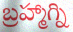
బ్రహ్మాగ్ని